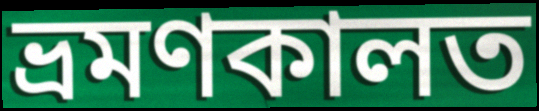
ভ্ৰমণকালত